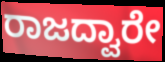
ರಾಜದ್ವಾರೇ